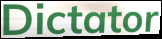
Dictator